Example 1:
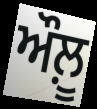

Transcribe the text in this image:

ਔਲ਼ੂ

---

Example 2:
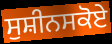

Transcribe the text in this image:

ਸੁਸ਼ੀਨਸਕੋਏ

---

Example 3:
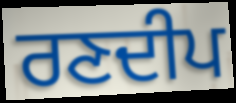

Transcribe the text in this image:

ਰਣਦੀਪ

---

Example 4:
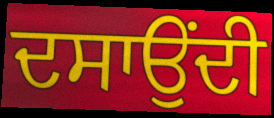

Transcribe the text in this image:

ਦਸਾਉਂਦੀ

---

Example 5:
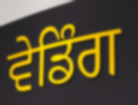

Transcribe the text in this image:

ਵੇਡਿੰਗ